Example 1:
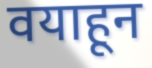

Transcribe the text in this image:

वयाहून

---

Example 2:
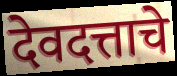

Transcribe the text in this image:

देवदत्ताचे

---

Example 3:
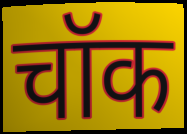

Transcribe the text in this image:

चॉक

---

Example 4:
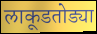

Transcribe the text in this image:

लाकूडतोड्या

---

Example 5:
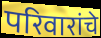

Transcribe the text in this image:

परिवारांचे